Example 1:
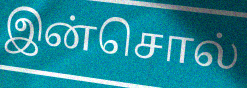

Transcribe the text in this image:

இன்சொல்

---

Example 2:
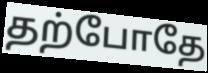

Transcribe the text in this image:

தற்போதே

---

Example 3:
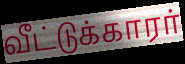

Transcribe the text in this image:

வீட்டுக்காரர்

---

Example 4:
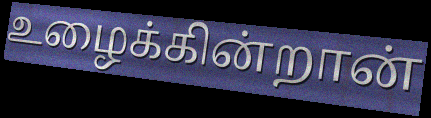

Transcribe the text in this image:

உழைக்கின்றான்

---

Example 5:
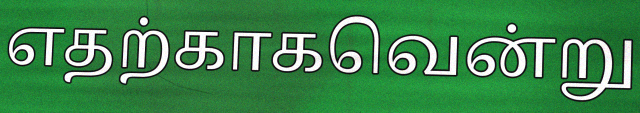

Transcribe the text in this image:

எதற்காகவென்று